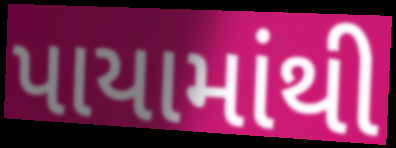
પાયામાંથી